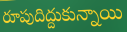
రూపుదిద్దుకున్నాయి